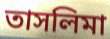
তাসলিমা